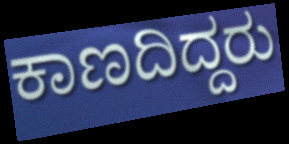
ಕಾಣದಿದ್ದರು